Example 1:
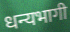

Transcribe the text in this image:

धन्यभागी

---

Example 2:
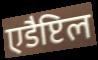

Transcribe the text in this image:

एडैप्टिल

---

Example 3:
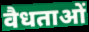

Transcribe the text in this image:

वैधताओं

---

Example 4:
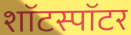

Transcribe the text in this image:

शॉटस्पॉटर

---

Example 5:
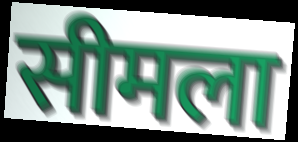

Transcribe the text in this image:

सीमला